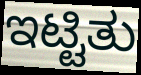
ಇಟ್ಟಿತು